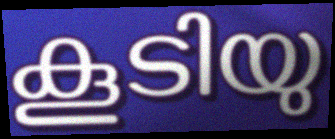
കൂടിയു